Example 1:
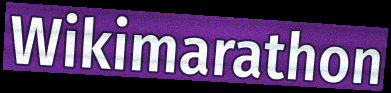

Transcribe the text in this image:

Wikimarathon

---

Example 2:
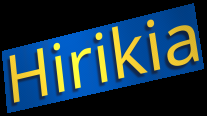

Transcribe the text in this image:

Hirikia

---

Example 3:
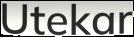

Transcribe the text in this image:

Utekar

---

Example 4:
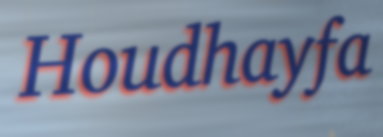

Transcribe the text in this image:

Houdhayfa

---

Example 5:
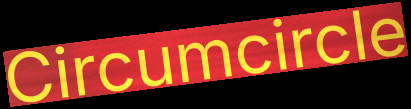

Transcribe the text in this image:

Circumcircle